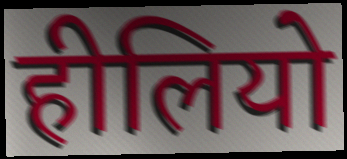
हीलियो